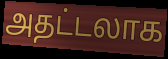
அதட்டலாக